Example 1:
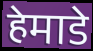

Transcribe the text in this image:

हेमाडे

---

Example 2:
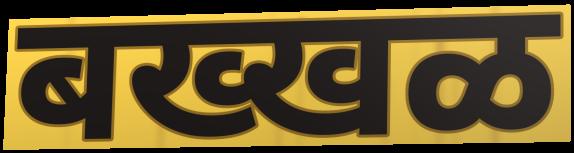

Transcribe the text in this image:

बख्खळ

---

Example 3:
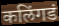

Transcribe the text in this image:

कलिंगडं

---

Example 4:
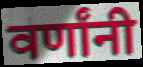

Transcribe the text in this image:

वर्णांनी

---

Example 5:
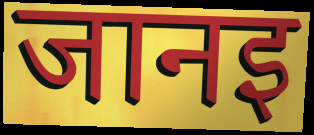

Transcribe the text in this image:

जानइ